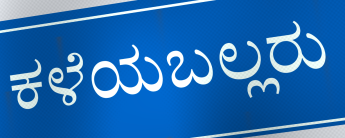
ಕಳೆಯಬಲ್ಲರು